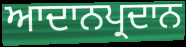
ਆਦਾਨਪ੍ਰਦਾਨ